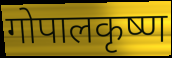
गोपालकृष्ण